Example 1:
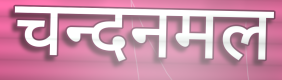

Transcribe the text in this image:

चन्दनमल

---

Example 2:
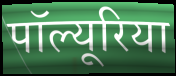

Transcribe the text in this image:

पॉल्यूरिया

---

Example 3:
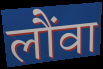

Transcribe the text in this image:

लौंवा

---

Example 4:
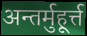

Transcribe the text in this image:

अन्तर्मुहूर्त्त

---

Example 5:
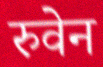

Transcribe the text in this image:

रुवेन